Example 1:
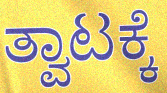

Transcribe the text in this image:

ತ್ವಾಟಕ್ಕೆ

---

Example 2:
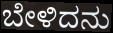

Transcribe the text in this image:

ಬೇಳಿದನು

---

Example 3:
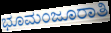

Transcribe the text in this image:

ಭೂಮಂಜೂರಾತಿ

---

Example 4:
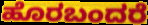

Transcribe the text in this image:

ಹೊರಬಂದರೆ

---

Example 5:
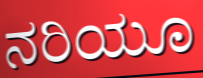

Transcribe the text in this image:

ನರಿಯೂ